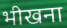
भीखना